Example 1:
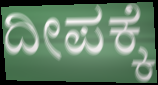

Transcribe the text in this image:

ದೀಪಕ್ಕೆ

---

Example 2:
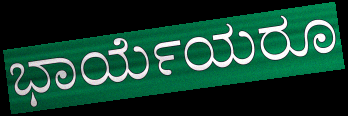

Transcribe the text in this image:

ಭಾರ್ಯೆಯರೂ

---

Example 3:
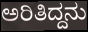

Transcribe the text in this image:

ಅರಿತಿದ್ದನು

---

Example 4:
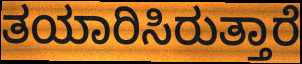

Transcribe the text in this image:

ತಯಾರಿಸಿರುತ್ತಾರೆ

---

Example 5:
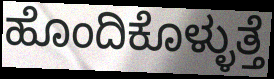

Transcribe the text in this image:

ಹೊಂದಿಕೊಳ್ಳುತ್ತೆ